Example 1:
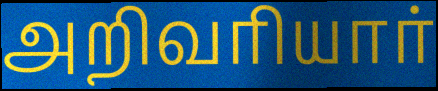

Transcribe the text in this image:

அறிவரியார்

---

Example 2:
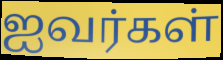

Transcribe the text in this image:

ஐவர்கள்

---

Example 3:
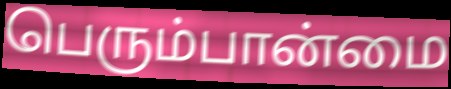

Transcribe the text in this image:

பெரும்பான்மை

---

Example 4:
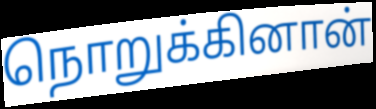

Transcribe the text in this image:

நொறுக்கினான்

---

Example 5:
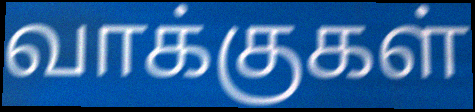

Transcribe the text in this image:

வாக்குகள்